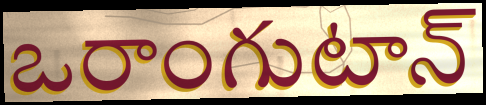
ఒరాంగుటాన్